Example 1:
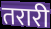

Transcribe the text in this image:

तरारी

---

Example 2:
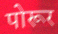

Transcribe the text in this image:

पोरूर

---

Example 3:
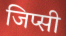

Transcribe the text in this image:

जिप्सी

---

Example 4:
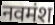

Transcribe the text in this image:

नवमंश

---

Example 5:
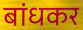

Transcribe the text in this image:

बांधकर